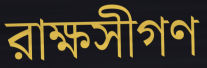
রাক্ষসীগণ